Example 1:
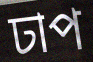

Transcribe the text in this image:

ঢাপ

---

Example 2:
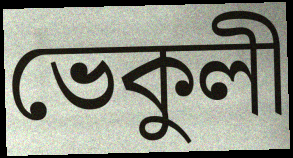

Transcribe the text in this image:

ভেকুলী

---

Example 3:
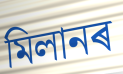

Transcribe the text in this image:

মিলানৰ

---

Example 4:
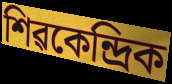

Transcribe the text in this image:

শিৱকেন্দ্ৰিক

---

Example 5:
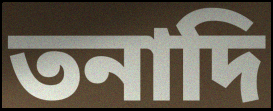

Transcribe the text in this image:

তনাদি